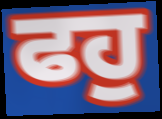
ਫਹੁ